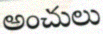
అంచులు